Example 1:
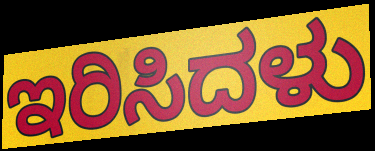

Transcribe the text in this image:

ಇರಿಸಿದಳು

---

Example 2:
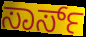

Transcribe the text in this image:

ಸಾರ್ಸ್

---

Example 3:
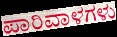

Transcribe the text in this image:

ಪಾರಿವಾಳಗಳು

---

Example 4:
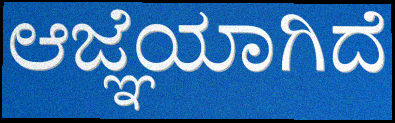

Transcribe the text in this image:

ಆಜ್ಞೆಯಾಗಿದೆ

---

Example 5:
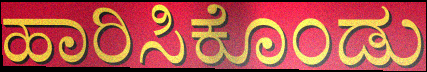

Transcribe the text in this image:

ಹಾರಿಸಿಕೊಂಡು